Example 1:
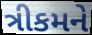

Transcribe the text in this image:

ત્રીકમને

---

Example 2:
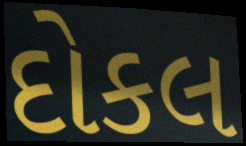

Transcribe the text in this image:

દોકલ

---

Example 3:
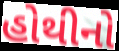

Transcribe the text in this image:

હોથીનો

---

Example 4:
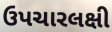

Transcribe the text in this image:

ઉપચારલક્ષી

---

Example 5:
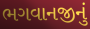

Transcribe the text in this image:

ભગવાનજીનું